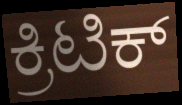
ಕ್ರಿಟಿಕ್